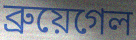
ব্রুয়েগেল